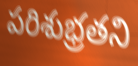
పరిశుభ్రతని